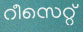
റീസെറ്റ്